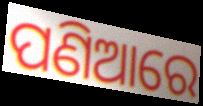
ପଣିଆରେ